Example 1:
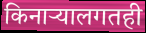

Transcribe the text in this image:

किनाऱ्यालगतही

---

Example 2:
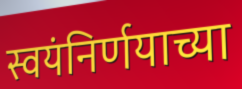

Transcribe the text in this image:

स्वयंनिर्णयाच्या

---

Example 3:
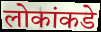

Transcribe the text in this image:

लोकांकडे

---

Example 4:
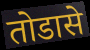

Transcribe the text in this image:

तोडासे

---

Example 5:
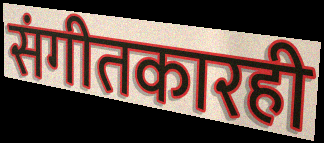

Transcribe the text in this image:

संगीतकारही